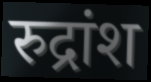
रुद्रांश